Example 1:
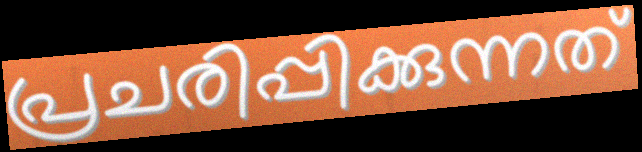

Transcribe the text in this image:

പ്രചരിപ്പിക്കുന്നത്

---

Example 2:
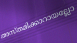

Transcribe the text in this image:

അസ്തമിക്കാറായല്ലോ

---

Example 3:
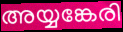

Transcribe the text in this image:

അയ്യങ്കേരി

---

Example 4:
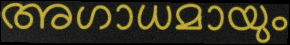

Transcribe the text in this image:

അഗാധമായും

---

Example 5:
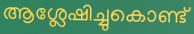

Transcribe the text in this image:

ആശ്ലേഷിച്ചുകൊണ്ട്